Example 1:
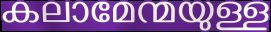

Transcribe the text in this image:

കലാമേന്മയുള്ള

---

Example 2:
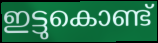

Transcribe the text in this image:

ഇട്ടുകൊണ്ട്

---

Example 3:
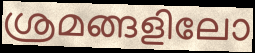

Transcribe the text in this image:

ശ്രമങ്ങളിലോ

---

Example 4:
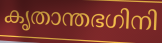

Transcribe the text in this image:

കൃതാന്തഭഗിനി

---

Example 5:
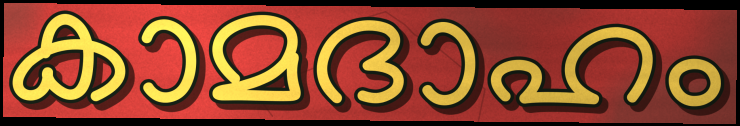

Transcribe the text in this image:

കാമദാഹം